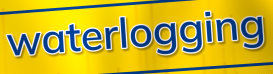
waterlogging